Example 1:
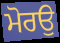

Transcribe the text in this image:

ਮੋਰਉ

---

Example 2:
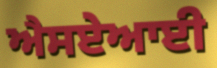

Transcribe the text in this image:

ਐਸਏਆਈ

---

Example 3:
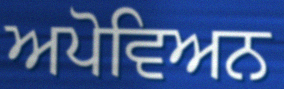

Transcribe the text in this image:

ਅਪੋਵਿਅਨ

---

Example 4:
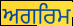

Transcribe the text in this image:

ਅਗਰਿਮ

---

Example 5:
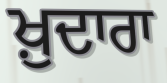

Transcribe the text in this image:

ਖ਼ੁਦਾਰਾ